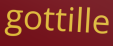
gottille